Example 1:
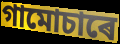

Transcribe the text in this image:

গামোচাৰে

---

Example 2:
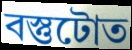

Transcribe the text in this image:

বস্তুটোত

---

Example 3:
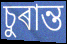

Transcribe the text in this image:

চুৰান্ত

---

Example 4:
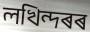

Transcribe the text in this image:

লখিন্দৰৰ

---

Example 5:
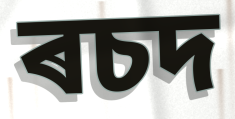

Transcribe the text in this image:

ৰচদ